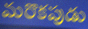
మరొకపుడు